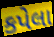
કપેલા